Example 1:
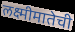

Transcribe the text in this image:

लक्ष्मीमातेची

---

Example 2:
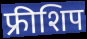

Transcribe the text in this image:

फ्रीशिप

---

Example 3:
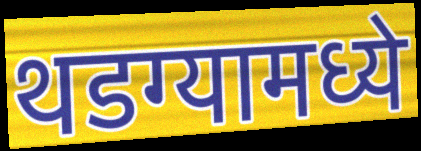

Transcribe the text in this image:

थडग्यामध्ये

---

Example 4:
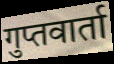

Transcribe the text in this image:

गुप्तवार्ता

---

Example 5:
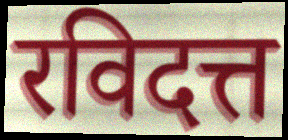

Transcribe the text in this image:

रविदत्त